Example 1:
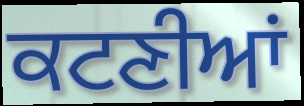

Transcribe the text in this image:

ਕਟਣੀਆਂ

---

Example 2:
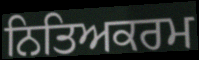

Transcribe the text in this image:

ਨਿਤਿਅਕਰਮ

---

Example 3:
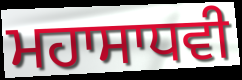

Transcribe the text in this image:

ਮਹਾਸਾਧਵੀ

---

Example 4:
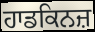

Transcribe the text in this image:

ਹਾਡਕਿਨਜ਼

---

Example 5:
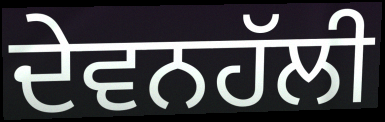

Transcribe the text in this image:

ਦੇਵਨਹੱਲੀ